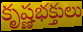
కృష్ణభక్తులు